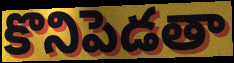
కొనిపెడతా